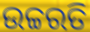
ଉଚ୍ଚରତି